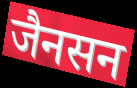
जैनसन